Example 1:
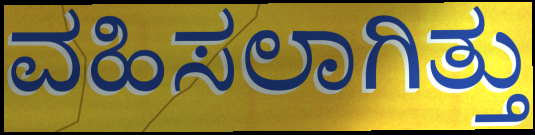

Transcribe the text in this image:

ವಹಿಸಲಾಗಿತ್ತು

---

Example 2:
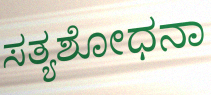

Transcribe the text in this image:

ಸತ್ಯಶೋಧನಾ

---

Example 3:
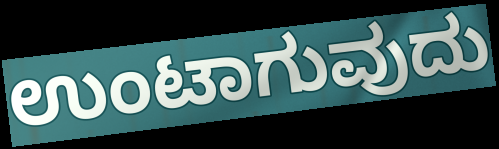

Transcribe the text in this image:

ಉಂಟಾಗುವುದು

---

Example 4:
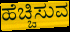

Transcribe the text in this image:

ಹೆಚ್ಚಿಸುವ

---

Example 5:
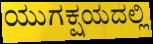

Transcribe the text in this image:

ಯುಗಕ್ಷಯದಲ್ಲಿ